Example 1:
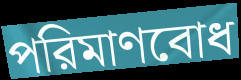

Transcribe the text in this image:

পরিমাণবোধ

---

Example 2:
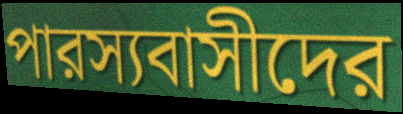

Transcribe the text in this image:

পারস্যবাসীদের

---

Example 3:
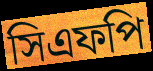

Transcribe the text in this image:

সিএফপি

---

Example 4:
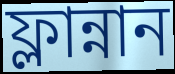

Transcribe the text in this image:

ফ্লান্নান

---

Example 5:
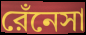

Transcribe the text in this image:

রেঁনেসা